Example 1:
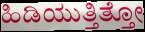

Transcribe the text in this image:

ಹಿಡಿಯುತ್ತಿತ್ತೋ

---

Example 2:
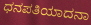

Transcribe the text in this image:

ಧನಪತಿಯಾದನಾ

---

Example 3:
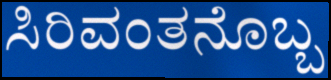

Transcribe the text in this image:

ಸಿರಿವಂತನೊಬ್ಬ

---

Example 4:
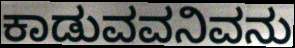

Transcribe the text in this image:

ಕಾಡುವವನಿವನು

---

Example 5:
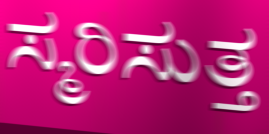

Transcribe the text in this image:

ಸ್ಮರಿಸುತ್ತ